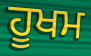
ਹੂਖਮ